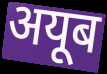
अयूब